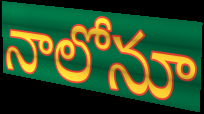
నాలోనూ